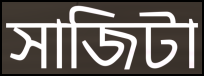
সাজিটা